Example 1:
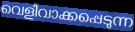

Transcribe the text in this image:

വെളിവാക്കപ്പെടുന്ന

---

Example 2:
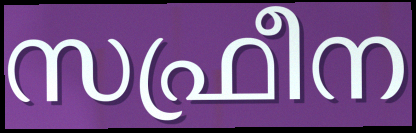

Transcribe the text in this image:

സഫ്രീന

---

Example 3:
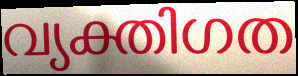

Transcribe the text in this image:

വ്യക്തിഗത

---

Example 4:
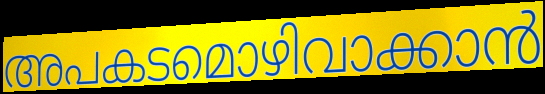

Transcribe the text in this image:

അപകടമൊഴിവാക്കാൻ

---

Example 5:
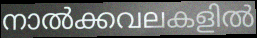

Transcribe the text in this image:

നാൽക്കവലകളിൽ